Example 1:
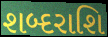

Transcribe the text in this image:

શબ્દરાશિ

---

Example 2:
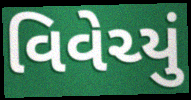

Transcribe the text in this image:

વિવેચ્યું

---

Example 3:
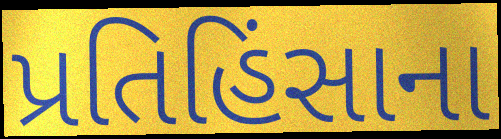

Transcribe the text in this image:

પ્રતિહિંસાના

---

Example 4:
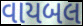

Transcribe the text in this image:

વાયબલ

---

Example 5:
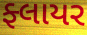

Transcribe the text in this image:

ફ્લાયર